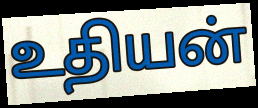
உதியன்